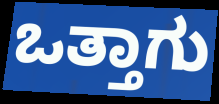
ಒತ್ತಾಗು